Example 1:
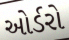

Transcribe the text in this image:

ઓર્ડરો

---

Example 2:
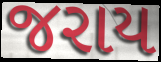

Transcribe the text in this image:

જરાય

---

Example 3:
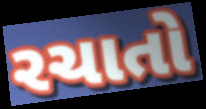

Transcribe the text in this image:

રચાતો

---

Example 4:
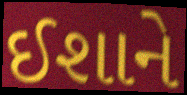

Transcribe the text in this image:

ઈશાને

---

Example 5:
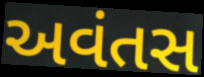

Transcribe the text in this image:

અવંતસ